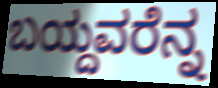
ಬಯ್ದವರೆನ್ನ